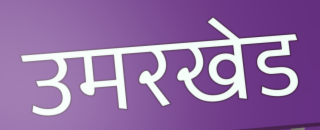
उमरखेड